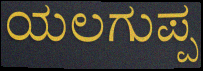
ಯಲಗುಪ್ಪ